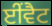
ਈਂਵੈਟ